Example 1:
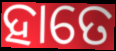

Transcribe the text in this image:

ହାତେ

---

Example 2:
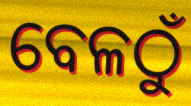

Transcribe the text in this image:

ବେଳଠୁଁ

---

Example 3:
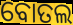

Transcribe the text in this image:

ବୋତଲ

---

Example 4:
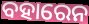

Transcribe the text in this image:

ବହାରେନ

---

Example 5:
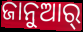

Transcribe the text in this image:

ଜାନୁଆର୍